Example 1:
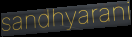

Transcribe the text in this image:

sandhyarani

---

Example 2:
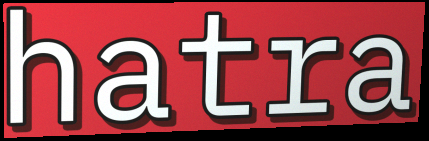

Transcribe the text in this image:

hatra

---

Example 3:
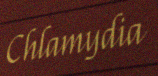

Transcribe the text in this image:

Chlamydia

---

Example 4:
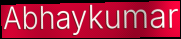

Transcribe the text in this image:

Abhaykumar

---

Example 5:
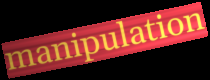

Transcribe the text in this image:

manipulation